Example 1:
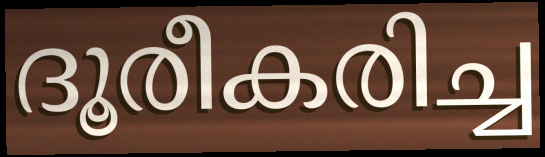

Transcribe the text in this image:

ദൂരീകരിച്ച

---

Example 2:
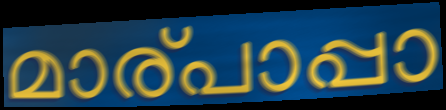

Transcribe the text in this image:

മാര്പാപ്പാ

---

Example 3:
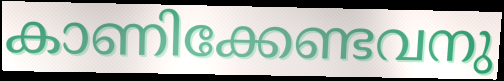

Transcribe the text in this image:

കാണിക്കേണ്ടവനു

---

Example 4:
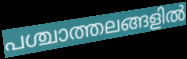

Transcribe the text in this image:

പശ്ചാത്തലങ്ങളിൽ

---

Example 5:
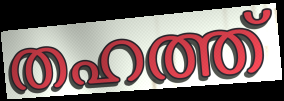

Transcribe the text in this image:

തഹത്ത്